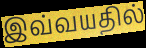
இவ்வயதில்